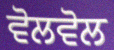
ਵੋਲਵੋਲ